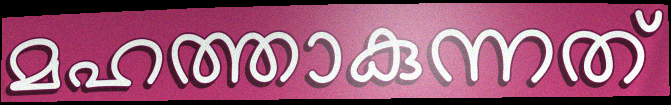
മഹത്താകുന്നത്